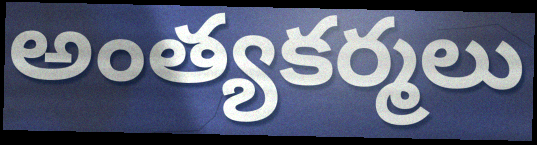
అంత్యకర్మలు